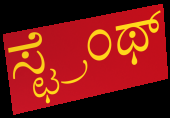
ಸ್ಟ್ರೆಂಥ್